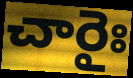
చారైః